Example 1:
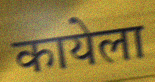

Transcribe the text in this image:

कायेला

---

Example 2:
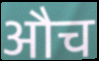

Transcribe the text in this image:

औच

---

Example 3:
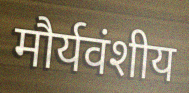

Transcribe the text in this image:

मौर्यवंशीय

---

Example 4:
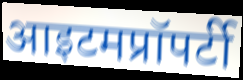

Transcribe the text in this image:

आइटमप्रॉपर्टी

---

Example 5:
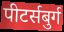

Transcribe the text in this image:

पीटर्सबुर्ग